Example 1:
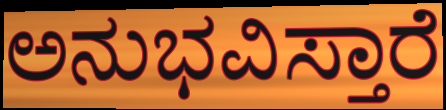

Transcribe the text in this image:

ಅನುಭವಿಸ್ತಾರೆ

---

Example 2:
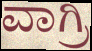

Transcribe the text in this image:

ವಾಗ್ರಿ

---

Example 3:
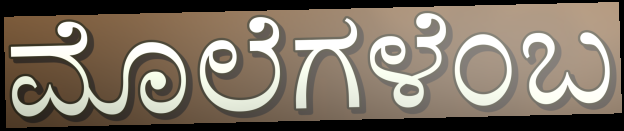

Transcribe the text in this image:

ಮೊಲೆಗಳೆಂಬ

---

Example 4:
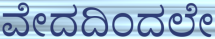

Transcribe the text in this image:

ವೇದದಿಂದಲೇ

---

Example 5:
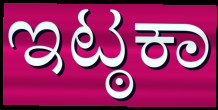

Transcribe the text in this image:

ಇಟ್ಠಕಾ